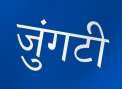
जुंगटी